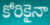
కోరికైనా